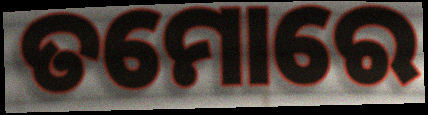
ତମୋରେ